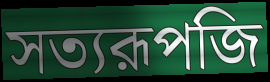
সত্যরূপজি